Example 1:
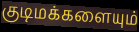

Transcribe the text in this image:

குடிமக்களையும்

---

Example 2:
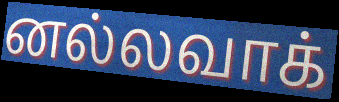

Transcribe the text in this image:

னல்லவாக்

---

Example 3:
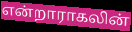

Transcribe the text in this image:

என்றாராகலின்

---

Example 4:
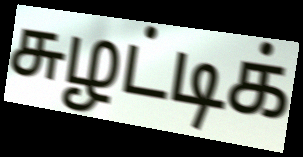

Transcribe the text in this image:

சுழட்டிக்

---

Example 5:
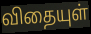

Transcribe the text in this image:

விதையுள்